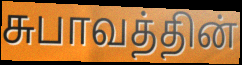
சுபாவத்தின்